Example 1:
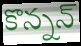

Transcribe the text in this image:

కొన్నన్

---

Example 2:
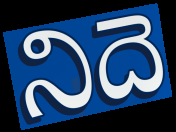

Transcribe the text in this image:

నిదె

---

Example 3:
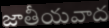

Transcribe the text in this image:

జాతీయవాద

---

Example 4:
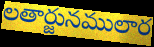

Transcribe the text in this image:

లతార్జునములార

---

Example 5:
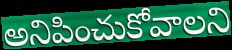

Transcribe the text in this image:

అనిపించుకోవాలని